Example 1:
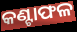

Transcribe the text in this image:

କଣ୍ଟାଫଳ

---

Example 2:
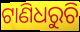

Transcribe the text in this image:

ଟାଣିଧରୁଚି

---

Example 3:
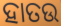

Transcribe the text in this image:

ହାତଉ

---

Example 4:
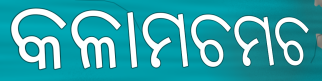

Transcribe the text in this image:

କଳାମଚମଚ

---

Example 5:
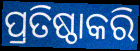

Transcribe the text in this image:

ପ୍ରତିଷ୍ଠାକରି